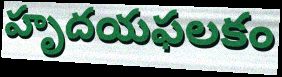
హృదయఫలకం